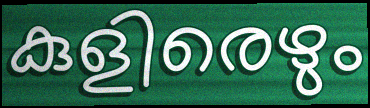
കുളിരെഴും